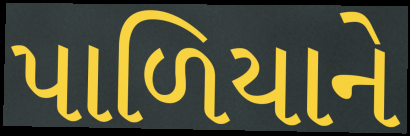
પાળિયાને